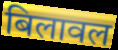
बिलावल